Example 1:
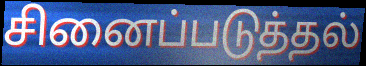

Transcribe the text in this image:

சினைப்படுத்தல்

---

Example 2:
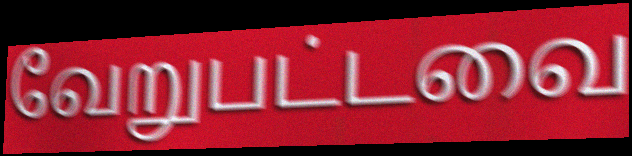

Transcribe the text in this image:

வேறுபட்டவை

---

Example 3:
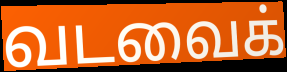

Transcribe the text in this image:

வடவைக்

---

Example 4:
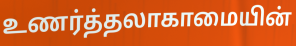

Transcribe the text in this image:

உணர்த்தலாகாமையின்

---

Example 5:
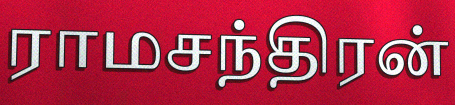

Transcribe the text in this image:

ராமசந்திரன்